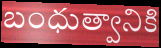
బంధుత్వానికి